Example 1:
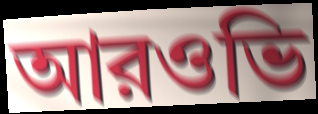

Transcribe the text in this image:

আরওভি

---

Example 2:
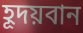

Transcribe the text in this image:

হূদয়বান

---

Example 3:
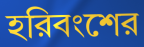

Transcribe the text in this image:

হরিবংশের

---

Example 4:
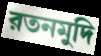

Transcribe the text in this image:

রতনমুদি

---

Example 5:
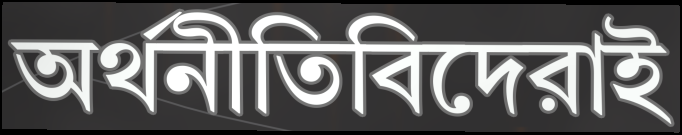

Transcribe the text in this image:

অর্থনীতিবিদেরাই